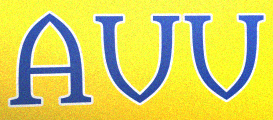
AUU